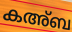
കഅ്ബ